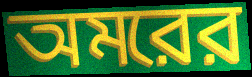
অমরের